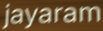
jayaram